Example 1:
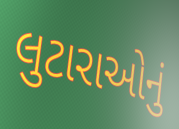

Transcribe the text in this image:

લુટારાઓનું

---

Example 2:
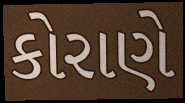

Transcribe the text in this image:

કોરાણે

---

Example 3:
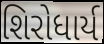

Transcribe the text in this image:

શિરોધાર્ય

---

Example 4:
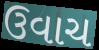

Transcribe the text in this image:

ઉવાચ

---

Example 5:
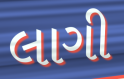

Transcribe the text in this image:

લાગી